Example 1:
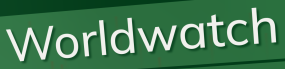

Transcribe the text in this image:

Worldwatch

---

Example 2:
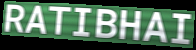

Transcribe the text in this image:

RATIBHAI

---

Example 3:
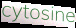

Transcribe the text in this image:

cytosine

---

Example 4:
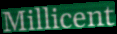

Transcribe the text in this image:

Millicent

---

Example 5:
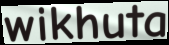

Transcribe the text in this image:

wikhuta